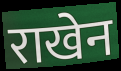
राखेन